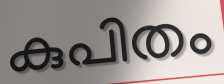
കുപിതം